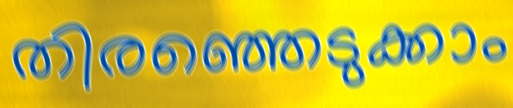
തിരഞ്ഞെടുക്കാം